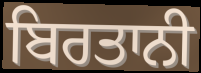
ਬਿਰਤਾਨੀ